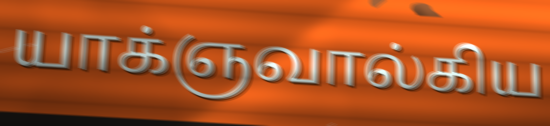
யாக்ஞவால்கிய